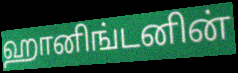
ஹானிங்டனின்